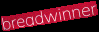
breadwinner